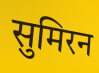
सुमिरन